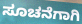
ಸೂಚನೆಗಾಗಿ